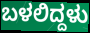
ಬಳಲಿದ್ದಳು